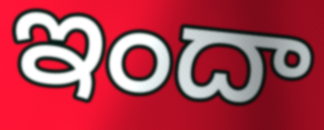
ఇందా